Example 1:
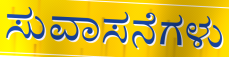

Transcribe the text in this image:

ಸುವಾಸನೆಗಳು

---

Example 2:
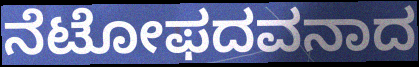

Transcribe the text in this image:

ನೆಟೋಫದವನಾದ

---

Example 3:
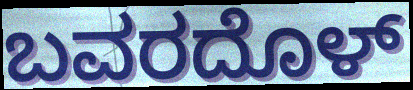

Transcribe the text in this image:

ಬವರದೊಳ್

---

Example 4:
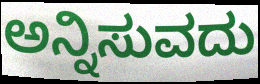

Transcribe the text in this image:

ಅನ್ನಿಸುವದು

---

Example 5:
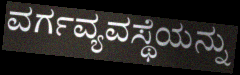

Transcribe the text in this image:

ವರ್ಗವ್ಯವಸ್ಥೆಯನ್ನು